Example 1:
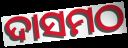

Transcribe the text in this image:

ଦାସମଠ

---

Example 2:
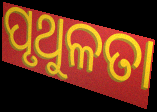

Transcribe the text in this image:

ପୃଥୁଳତା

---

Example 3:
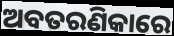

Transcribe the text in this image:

ଅବତରଣିକାରେ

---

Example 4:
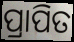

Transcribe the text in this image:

ପ୍ରାପିତ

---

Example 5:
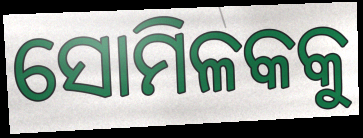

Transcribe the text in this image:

ସୋମିଳକକୁ